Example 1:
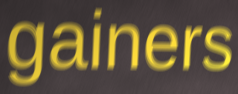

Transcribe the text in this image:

gainers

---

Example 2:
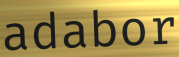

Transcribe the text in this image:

adabor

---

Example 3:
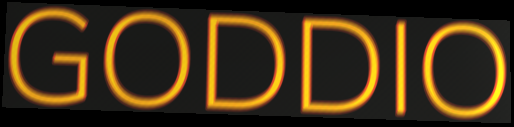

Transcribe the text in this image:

GODDIO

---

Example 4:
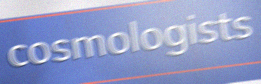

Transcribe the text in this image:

cosmologists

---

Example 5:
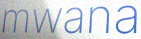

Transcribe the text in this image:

mwana